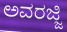
ಅವರಜ್ಜಿ